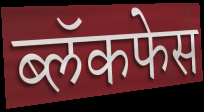
ब्लॅकफेस